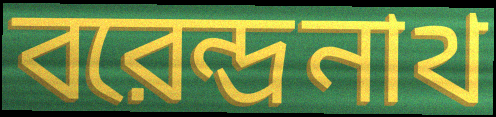
বরেন্দ্রনাথ